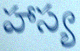
హాస్య